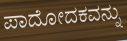
ಪಾದೋದಕವನ್ನು